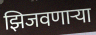
झिजवणाऱ्या